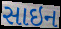
સાઇન